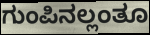
ಗುಂಪಿನಲ್ಲಂತೂ